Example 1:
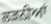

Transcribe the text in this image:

ਲੜਨੀਆਂ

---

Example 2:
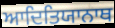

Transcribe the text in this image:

ਆਦਿਤਿਯਾਨਾਥ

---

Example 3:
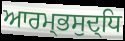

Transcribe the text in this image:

ਆਰਮ੍ਭਸੁਦ੍ਧਿ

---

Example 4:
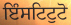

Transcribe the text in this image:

ਇੰਸਟਿਟੁਟੋ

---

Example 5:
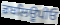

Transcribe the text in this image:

ਡਬਲਿਊਪੀਓ